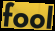
fool